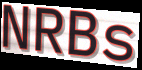
NRBs